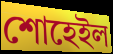
শোহেইল